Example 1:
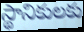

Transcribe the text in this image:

స్థానికులకు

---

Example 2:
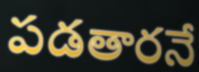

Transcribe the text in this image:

పడతారనే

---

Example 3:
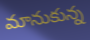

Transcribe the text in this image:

మానుకున్న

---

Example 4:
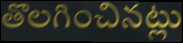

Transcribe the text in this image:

తొలగించినట్లు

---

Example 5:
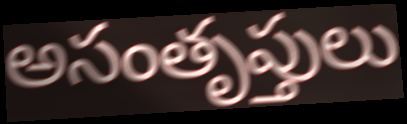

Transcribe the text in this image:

అసంతృప్తులు